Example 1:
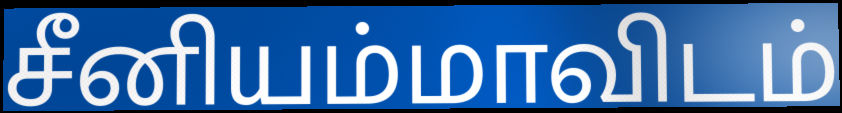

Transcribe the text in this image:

சீனியம்மாவிடம்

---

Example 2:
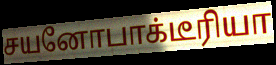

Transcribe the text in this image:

சயனோபாக்டீரியா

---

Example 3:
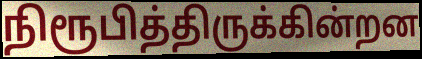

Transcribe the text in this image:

நிரூபித்திருக்கின்றன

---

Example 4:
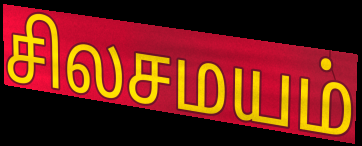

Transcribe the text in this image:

சிலசமயம்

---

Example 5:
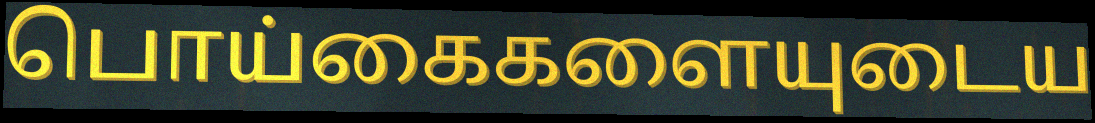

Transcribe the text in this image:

பொய்கைகளையுடைய